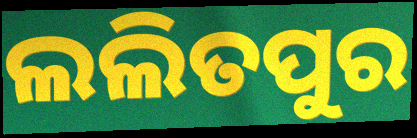
ଲଲିତପୁର